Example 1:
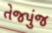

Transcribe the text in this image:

તેજપુંજ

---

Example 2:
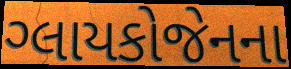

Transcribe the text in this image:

ગ્લાયકોજેનના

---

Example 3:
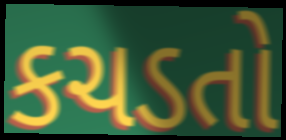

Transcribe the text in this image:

કચડતો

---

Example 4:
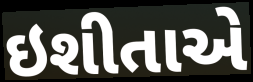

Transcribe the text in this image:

ઇશીતાએ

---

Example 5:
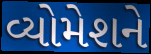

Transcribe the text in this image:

વ્યોમેશને